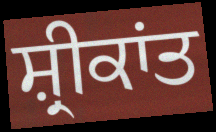
ਸ਼੍ਰੀਕਾਂਤ